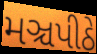
મઞ્ચપીઠે